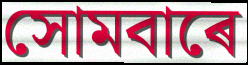
সোমবাৰে